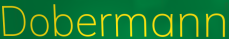
Dobermann